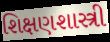
શિક્ષણશાસ્ત્રી